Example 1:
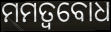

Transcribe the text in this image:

ମମତ୍ବବୋଧ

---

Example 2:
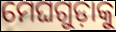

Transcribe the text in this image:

ମେଘଗୁଡ଼ାକୁ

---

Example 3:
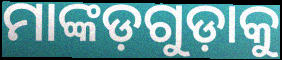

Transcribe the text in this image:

ମାଙ୍କଡ଼ଗୁଡ଼ାକୁ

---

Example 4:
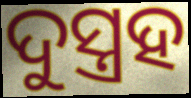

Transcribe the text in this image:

ଦୁସ୍ତ୍ରହ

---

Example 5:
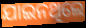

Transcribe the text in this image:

ଯାଇନଥିଲେ